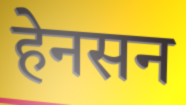
हेनसन